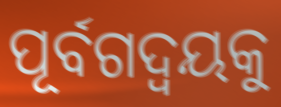
ପୂର୍ବଗଦ୍ଵୟକୁ